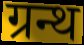
ग्रन्थ